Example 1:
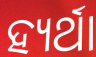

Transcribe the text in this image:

ହ୍ୟର୍ଥା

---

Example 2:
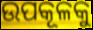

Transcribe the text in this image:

ଉପକୂଳକୁ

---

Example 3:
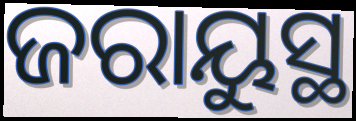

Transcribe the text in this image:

ଜରାୟୁସ୍ଥ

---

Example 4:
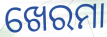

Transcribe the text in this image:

ଖେରମା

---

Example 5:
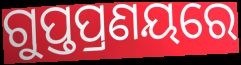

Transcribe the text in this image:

ଗୁପ୍ତପ୍ରଣୟରେ